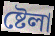
ষ্টেলা